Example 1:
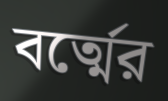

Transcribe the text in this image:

বর্ত্মের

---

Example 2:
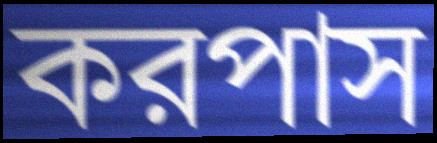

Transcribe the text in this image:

করপাস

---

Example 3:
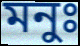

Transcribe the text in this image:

মনুঃ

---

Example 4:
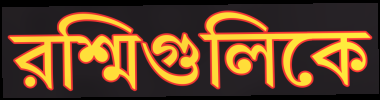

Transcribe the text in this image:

রশ্মিগুলিকে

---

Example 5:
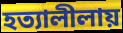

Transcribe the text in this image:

হত্যালীলায়